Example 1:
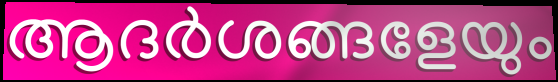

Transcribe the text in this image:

ആദർശങ്ങളേയും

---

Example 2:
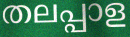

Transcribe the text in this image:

തലപ്പാള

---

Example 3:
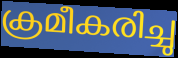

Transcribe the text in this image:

ക്രമീകരിച്ചു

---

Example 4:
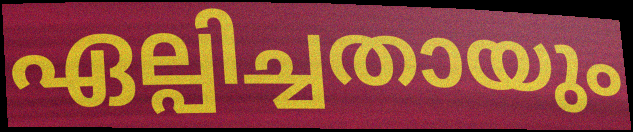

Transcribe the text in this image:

ഏല്പിച്ചതായും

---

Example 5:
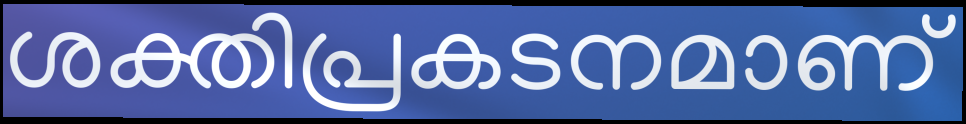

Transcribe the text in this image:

ശക്തിപ്രകടനമാണ്